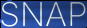
SNAP